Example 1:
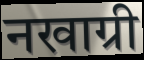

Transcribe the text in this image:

नखाग्री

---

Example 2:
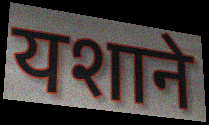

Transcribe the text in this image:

यशाने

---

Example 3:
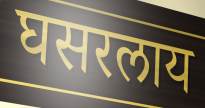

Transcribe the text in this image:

घसरलाय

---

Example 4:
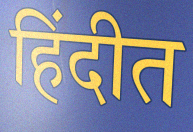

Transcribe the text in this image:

हिंदीत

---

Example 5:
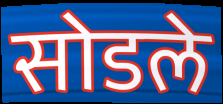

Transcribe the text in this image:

सोडले